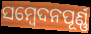
ସମ୍ବେଦନପୂର୍ଣ୍ଣ